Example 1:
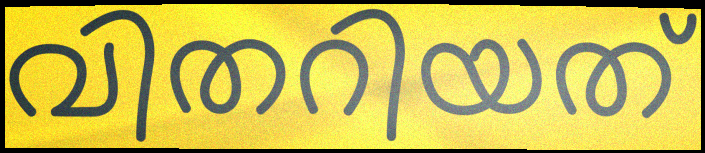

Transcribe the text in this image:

വിതറിയത്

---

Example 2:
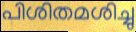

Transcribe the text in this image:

പിശിതമശിച്ചു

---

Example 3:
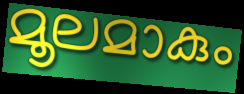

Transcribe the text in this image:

മൂലമാകും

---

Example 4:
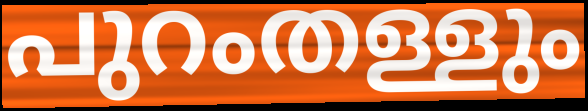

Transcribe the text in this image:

പുറംതള്ളും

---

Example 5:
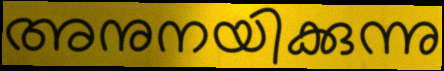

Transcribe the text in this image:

അനുനയിക്കുന്നു